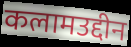
कलामउद्दीन